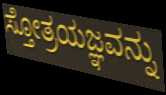
ಸ್ತೋತ್ರಯಜ್ಞವನ್ನು